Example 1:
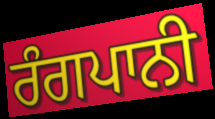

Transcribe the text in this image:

ਰੰਗਪਾਨੀ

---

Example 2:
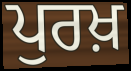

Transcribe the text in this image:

ਪੁਰਖ਼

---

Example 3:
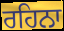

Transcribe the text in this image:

ਰਹਿਨਾ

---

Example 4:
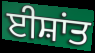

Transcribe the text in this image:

ਈਸ਼ਾਂਤ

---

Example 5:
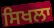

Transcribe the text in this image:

ਸਿਖਲਾ